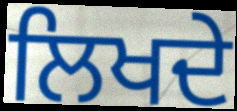
ਲਿਖਦੇ